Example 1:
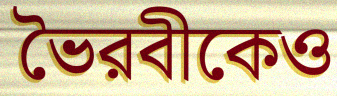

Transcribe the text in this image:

ভৈরবীকেও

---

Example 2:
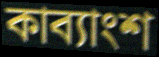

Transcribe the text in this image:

কাব্যাংশ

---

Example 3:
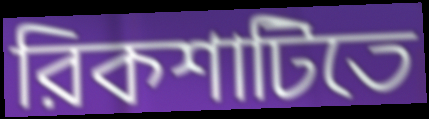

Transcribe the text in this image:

রিকশাটিতে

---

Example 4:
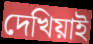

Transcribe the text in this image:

দেখিয়াই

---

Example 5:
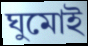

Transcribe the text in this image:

ঘুমোই